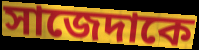
সাজেদাকে